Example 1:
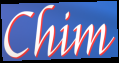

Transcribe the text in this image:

Chim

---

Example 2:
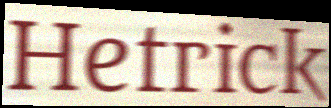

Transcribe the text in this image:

Hetrick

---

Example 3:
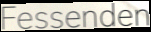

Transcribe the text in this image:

Fessenden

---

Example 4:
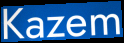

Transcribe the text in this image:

Kazem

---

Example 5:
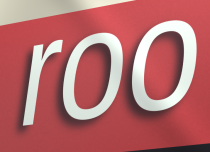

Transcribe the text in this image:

roo